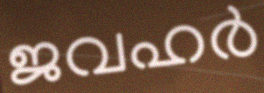
ജവഹർ